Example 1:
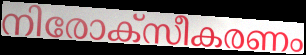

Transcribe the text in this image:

നിരോക്സീകരണം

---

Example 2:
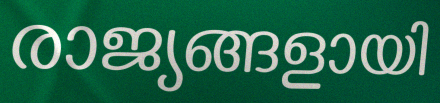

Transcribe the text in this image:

രാജ്യങ്ങളായി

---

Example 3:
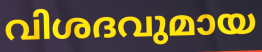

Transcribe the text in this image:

വിശദവുമായ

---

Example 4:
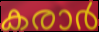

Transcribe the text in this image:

കരാർ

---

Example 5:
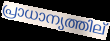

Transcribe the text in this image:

പ്രാധാന്യത്തില്